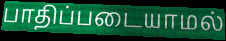
பாதிப்படையாமல்